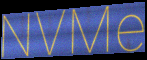
NVMe